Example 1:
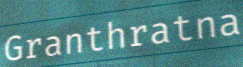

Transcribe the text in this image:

Granthratna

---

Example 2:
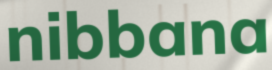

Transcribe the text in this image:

nibbana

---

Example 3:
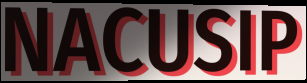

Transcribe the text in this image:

NACUSIP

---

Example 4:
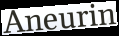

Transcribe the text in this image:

Aneurin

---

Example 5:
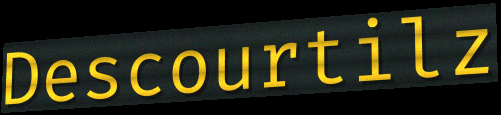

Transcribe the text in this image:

Descourtilz